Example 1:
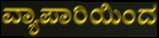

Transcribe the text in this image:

ವ್ಯಾಪಾರಿಯಿಂದ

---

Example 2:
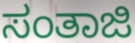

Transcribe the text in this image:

ಸಂತಾಜಿ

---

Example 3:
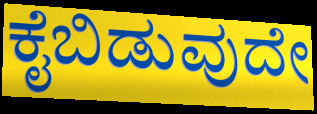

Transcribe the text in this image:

ಕೈಬಿಡುವುದೇ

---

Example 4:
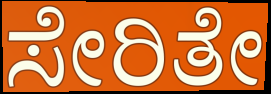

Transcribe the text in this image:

ಸೇರಿತೇ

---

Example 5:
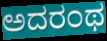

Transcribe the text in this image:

ಅದರಂಥ